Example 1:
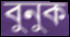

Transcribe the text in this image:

বুনুক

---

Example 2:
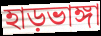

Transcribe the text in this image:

হাড়ভাঙ্গা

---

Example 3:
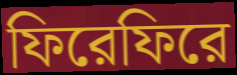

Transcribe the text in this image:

ফিরেফিরে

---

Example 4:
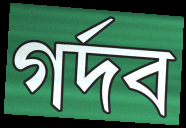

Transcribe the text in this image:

গর্দব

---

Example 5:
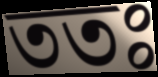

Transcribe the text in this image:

ততঃ